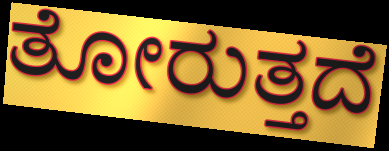
ತೋರುತ್ತದೆ